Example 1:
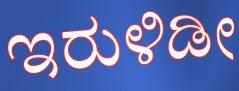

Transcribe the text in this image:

ಇರುಳಿಡೀ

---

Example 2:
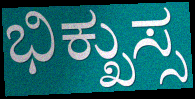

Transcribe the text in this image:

ಭಿಕ್ಖುಸ್ಸ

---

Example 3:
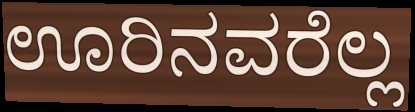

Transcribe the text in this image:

ಊರಿನವರೆಲ್ಲ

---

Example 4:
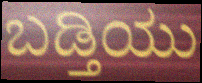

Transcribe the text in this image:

ಬಡ್ತಿಯು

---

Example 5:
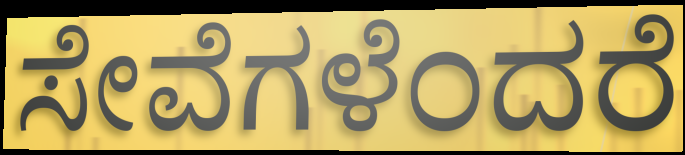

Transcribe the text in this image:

ಸೇವೆಗಳೆಂದರೆ